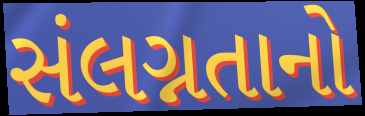
સંલગ્નતાનો